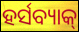
ହର୍ସବ୍ୟାକ୍